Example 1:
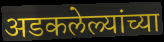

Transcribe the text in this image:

अडकलेल्यांच्या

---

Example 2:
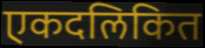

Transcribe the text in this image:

एकदलिकित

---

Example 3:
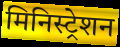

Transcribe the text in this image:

मिनिस्ट्रेशन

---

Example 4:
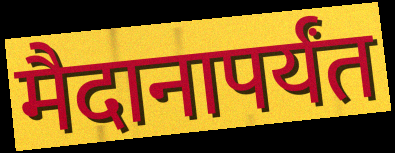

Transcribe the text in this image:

मैदानापर्यंत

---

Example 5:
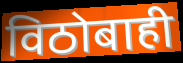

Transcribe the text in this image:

विठोबाही